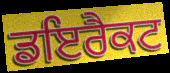
ਡਇਰੈਕਟ